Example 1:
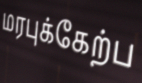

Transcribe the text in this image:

மரபுக்கேற்ப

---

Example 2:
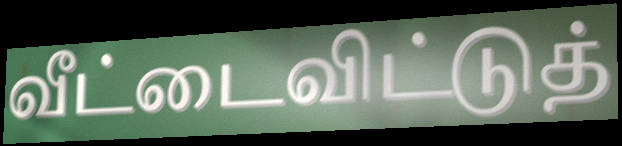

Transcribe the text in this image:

வீட்டைவிட்டுத்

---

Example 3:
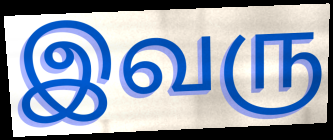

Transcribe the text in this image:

இவரு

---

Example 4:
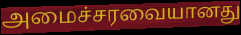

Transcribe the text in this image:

அமைச்சரவையானது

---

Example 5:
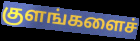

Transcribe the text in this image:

குளங்களைச்